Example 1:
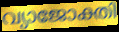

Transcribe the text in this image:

വ്യാജോക്തി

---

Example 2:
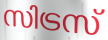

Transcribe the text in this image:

സിട്രസ്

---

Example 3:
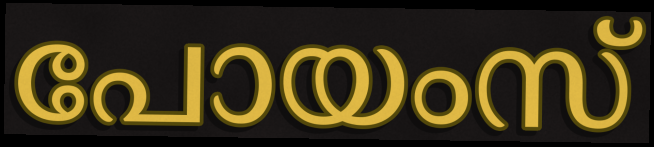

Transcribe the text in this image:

പോയംസ്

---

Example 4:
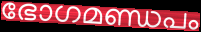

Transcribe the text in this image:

ഭോഗമണ്ഡപം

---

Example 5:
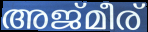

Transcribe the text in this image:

അജ്മീര്